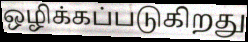
ஒழிக்கப்படுகிறது